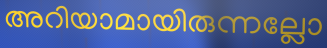
അറിയാമായിരുന്നല്ലോ